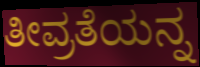
ತೀವ್ರತೆಯನ್ನ